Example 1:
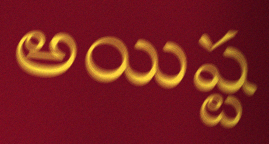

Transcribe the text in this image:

అయిష్ట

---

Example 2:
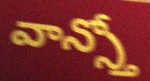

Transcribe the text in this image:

వాన్స్తో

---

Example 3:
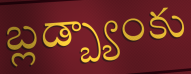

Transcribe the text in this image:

బ్లడ్బ్యాంకు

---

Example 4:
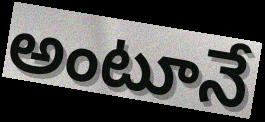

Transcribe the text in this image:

అంటూనే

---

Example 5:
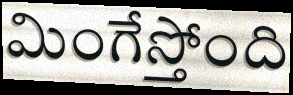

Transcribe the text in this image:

మింగేస్తోంది